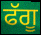
ਫੱਗੂ